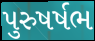
પુરુષર્ષભ